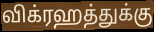
விக்ரஹத்துக்கு